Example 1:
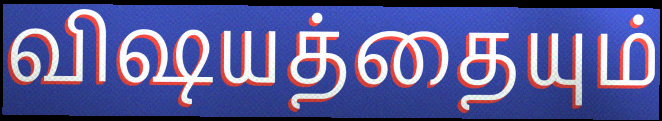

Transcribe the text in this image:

விஷயத்தையும்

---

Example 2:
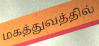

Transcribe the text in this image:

மகத்துவத்தில்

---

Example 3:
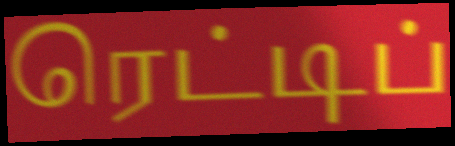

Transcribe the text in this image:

ரெட்டிப்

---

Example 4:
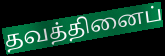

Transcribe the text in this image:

தவத்தினைப்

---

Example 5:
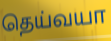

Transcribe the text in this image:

தெய்வயா